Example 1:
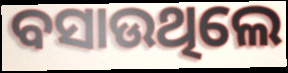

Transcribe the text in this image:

ବସାଉଥିଲେ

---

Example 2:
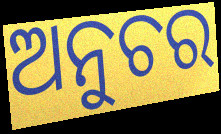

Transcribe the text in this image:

ଅନୁଚର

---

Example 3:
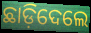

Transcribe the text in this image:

ଛାଡ଼ିଦେଲେ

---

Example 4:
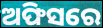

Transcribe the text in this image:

ଅଫିସରେ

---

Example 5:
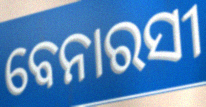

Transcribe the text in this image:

ବେନାରସୀ